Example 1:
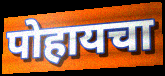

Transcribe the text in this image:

पोहायचा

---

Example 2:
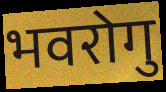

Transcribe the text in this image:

भवरोगु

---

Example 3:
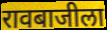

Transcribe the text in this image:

रावबाजीला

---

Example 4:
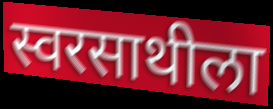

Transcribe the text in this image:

स्वरसाथीला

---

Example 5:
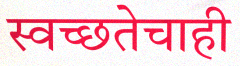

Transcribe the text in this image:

स्वच्छतेचाही